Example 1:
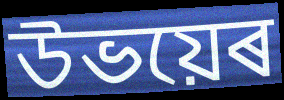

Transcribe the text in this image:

উভয়েৰ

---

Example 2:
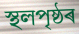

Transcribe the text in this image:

স্থলপৃষ্ঠৰ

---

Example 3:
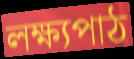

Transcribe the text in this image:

লক্ষ্যপাঠ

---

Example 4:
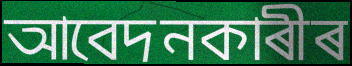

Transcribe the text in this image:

আবেদনকাৰীৰ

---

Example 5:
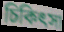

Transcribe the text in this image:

চিকিৎসা